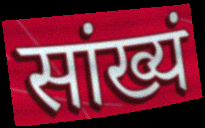
सांख्यं